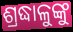
ଶ୍ରଦ୍ଧାଳୁଙ୍କୁ